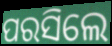
ପରସିଲେ